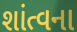
શાંત્વના